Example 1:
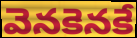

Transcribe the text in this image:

వెనకెనకే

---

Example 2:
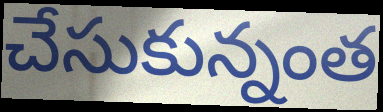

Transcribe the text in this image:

చేసుకున్నంత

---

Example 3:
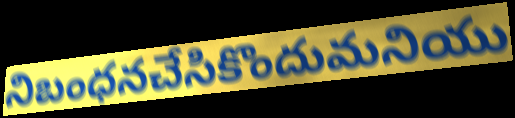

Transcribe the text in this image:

నిబంధనచేసికొందుమనియు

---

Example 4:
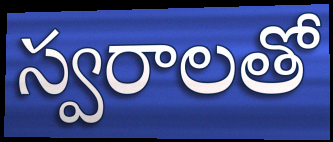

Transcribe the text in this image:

స్వరాలతో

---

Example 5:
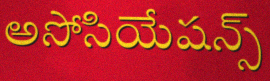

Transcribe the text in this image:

అసోసియేషన్స్